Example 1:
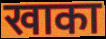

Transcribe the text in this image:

खाका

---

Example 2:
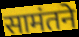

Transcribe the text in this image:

सामंतने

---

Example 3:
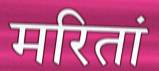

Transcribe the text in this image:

मरितां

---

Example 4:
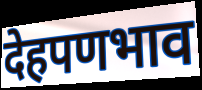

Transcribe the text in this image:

देहपणभाव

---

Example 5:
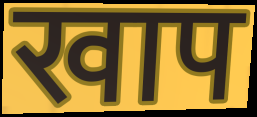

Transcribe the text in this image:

खाप